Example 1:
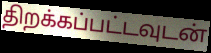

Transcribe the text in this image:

திறக்கப்பட்டவுடன்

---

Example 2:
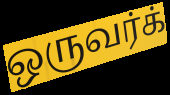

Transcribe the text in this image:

ஒருவர்க்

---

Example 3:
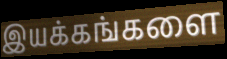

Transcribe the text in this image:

இயக்கங்களை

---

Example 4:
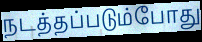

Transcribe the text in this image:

நடத்தப்படும்போது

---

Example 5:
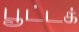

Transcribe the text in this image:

பூட்டக்